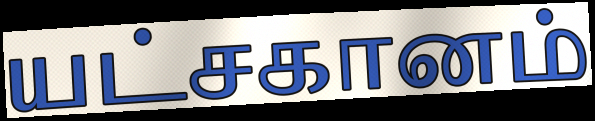
யட்சகானம்